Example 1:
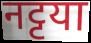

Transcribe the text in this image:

नट्टया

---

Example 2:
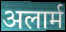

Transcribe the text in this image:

अलार्म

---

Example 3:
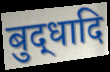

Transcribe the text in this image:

बुद्धादि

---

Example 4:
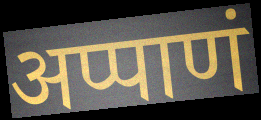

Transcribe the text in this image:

अप्पाणं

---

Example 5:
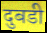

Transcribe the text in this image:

दुबडी